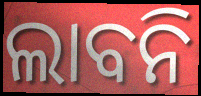
ଲାବନି